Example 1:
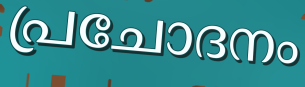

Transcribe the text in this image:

പ്രചോദനം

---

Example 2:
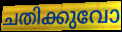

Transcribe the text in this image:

ചതിക്കുവോ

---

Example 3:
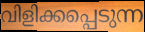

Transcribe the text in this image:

വിളിക്കപ്പെടുന്ന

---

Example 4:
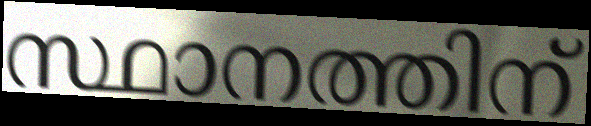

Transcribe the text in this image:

സ്ഥാനത്തിന്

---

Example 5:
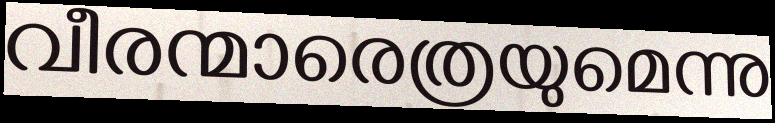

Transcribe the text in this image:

വീരന്മാരെത്രയുമെന്നു